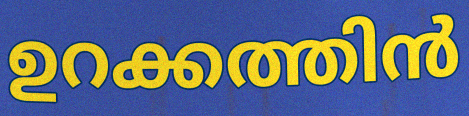
ഉറക്കത്തിൻ